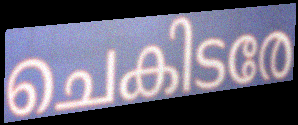
ചെകിടരേ